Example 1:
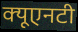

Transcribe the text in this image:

क्यूएनटी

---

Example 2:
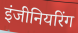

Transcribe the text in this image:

इंजीनियरिंग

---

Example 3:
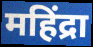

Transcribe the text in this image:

महिंद्रा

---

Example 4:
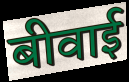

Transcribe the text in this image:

बीवाई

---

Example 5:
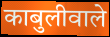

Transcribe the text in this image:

काबुलीवाले